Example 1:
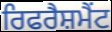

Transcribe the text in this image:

ਰਿਫਰੈਸ਼ਮੈਂਟ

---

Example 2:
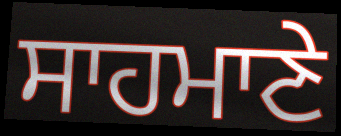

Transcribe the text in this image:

ਸਾਹਮਾਣੇ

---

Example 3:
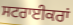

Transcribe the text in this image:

ਸਟਰਾਈਕਰਾਂ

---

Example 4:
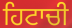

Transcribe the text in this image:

ਹਿਟਾਚੀ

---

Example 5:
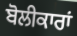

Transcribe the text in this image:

ਬੋਲੀਕਾਰਾਂ